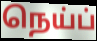
நெய்ப்